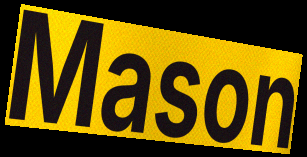
Mason